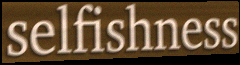
selfishness